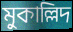
মুকাল্লিদ